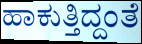
ಹಾಕುತ್ತಿದ್ದಂತೆ